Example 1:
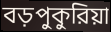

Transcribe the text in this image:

বড়পুকুরিয়া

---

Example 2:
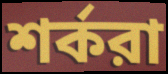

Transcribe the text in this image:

শর্করা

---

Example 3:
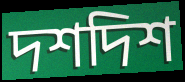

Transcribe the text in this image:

দশদিশ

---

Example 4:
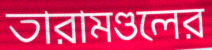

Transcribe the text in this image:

তারামণ্ডলের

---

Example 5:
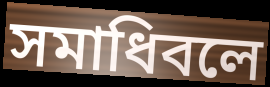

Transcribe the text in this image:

সমাধিবলে